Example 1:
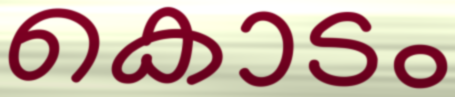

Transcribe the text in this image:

കൊടം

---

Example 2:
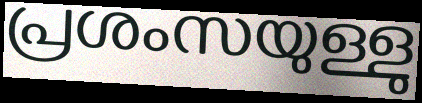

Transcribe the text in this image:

പ്രശംസയുള്ളു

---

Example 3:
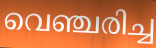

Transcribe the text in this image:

വെഞ്ചരിച്ച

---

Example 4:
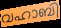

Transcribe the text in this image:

വഹാബി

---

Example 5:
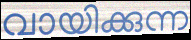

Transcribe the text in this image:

വായിക്കുന്ന